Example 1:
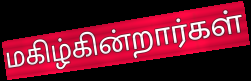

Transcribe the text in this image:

மகிழ்கின்றார்கள்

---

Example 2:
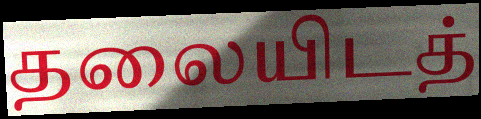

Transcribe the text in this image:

தலையிடத்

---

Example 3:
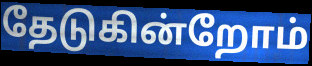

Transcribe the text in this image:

தேடுகின்றோம்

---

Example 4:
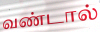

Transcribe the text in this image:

வண்டால்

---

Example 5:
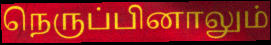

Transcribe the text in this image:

நெருப்பினாலும்